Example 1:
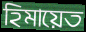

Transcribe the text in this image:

হিমায়েত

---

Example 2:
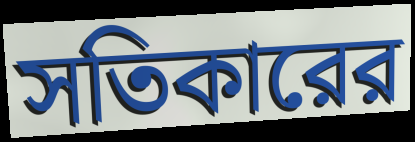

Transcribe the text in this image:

সতিকারের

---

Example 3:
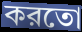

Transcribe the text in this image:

করতো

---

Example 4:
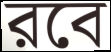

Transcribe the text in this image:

রবে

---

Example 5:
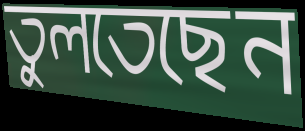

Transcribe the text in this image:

তুলতেছেন